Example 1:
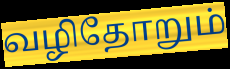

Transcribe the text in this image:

வழிதோறும்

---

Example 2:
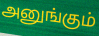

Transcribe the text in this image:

அனுங்கும்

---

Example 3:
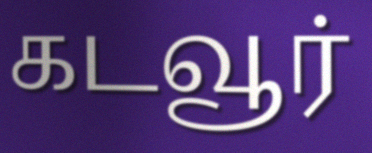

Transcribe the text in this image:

கடவூர்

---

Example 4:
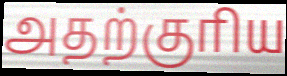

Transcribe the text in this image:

அதற்குரிய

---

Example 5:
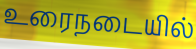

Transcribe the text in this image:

உரைநடையில்